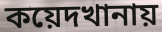
কয়েদখানায়